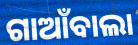
ଗାଆଁବାଲା